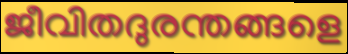
ജീവിതദുരന്തങ്ങളെ